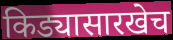
किड्यासारखेच